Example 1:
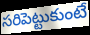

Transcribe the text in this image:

సరిపెట్టుకుంటే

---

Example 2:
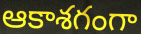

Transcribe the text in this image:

ఆకాశగంగా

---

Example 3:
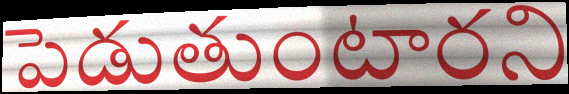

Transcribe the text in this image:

పెడుతుంటారని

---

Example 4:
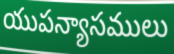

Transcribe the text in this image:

యుపన్యాసములు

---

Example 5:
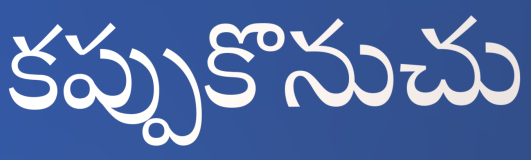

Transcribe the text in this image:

కప్పుకొనుచు